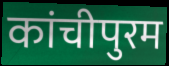
कांचीपुरम